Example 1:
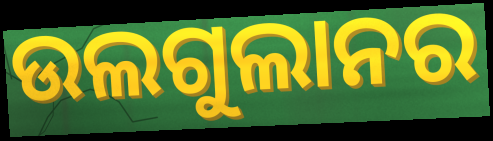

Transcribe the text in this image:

ଉଲଗୁଲାନର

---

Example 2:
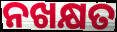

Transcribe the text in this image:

ନଖକ୍ଷତ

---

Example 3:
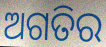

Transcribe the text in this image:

ଅଗତିର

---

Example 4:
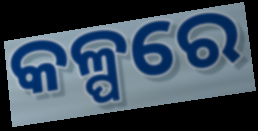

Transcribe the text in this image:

କଳ୍ପରେ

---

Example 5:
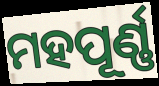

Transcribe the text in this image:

ମହପୂର୍ଣ୍ଣ